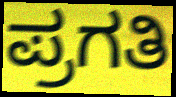
ಪ್ರಗತಿ